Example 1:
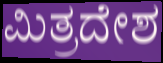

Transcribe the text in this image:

ಮಿತ್ರದೇಶ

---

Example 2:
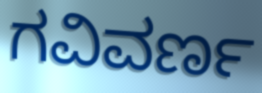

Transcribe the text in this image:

ಗವಿವರ್ಣ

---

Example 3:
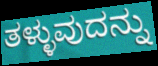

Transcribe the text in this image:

ತಳ್ಳುವುದನ್ನು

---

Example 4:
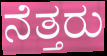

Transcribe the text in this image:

ನೆತ್ತರು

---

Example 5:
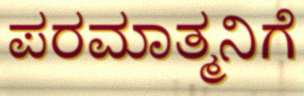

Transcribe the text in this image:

ಪರಮಾತ್ಮನಿಗೆ